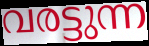
വരട്ടുന്ന